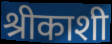
श्रीकाशी